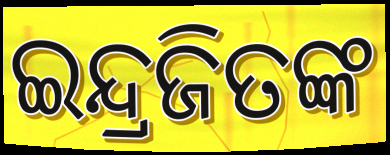
ଇନ୍ଦ୍ରଜିତଙ୍କ